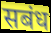
सबंध